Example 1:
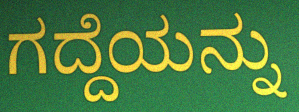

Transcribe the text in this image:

ಗದ್ದೆಯನ್ನು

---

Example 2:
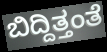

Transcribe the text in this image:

ಬಿದ್ದಿತ್ತಂತೆ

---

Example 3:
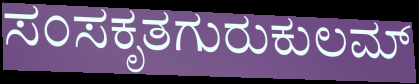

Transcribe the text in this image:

ಸಂಸಕೃತಗುರುಕುಲಮ್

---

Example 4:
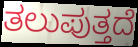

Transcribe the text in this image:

ತಲುಪುತ್ತದೆ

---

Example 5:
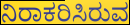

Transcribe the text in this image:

ನಿರಾಕರಿಸಿರುವ